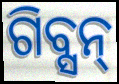
ଗିବ୍ସନ୍